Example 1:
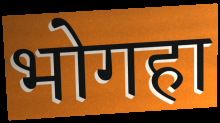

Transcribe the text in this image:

भोगहा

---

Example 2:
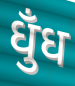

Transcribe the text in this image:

धुँध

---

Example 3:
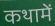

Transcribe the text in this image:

कथामें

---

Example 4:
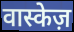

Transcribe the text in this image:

वास्केज़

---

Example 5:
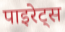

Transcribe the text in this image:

पाइरेट्स